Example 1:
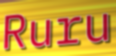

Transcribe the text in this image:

Ruru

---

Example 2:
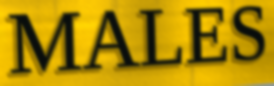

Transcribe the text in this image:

MALES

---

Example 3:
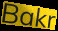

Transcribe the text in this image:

Bakr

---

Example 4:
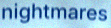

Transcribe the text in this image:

nightmares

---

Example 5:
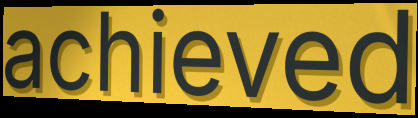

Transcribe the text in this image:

achieved